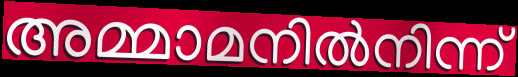
അമ്മാമനിൽനിന്ന്